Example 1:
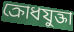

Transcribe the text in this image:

ক্রোধযুক্তা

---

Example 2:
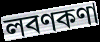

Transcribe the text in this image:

লবণকণা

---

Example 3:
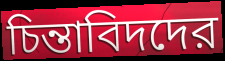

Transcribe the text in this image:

চিন্তাবিদদের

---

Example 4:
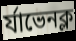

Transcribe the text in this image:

র্যাভেনক্ল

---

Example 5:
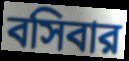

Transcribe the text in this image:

বসিবার